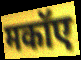
मकॉए